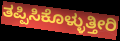
ತಪ್ಪಿಸಿಕೊಳ್ಳುತ್ತೀರಿ